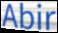
Abir